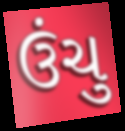
ઉંચુ